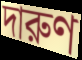
দারুণ